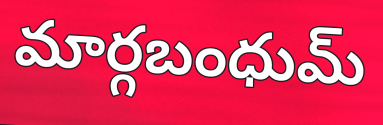
మార్గబంధుమ్